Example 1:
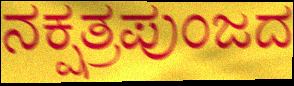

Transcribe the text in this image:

ನಕ್ಷತ್ರಪುಂಜದ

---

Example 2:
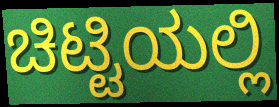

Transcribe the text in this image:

ಚಿಟ್ಟಿಯಲ್ಲಿ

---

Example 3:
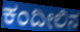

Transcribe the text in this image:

ಕಂದೀಲಿನ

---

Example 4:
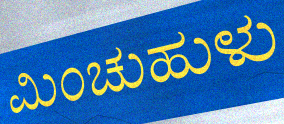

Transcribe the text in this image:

ಮಿಂಚುಹುಳು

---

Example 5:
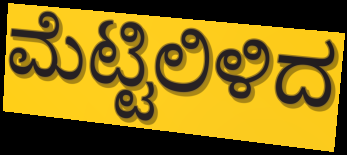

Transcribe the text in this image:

ಮೆಟ್ಟಿಲಿಳಿದ